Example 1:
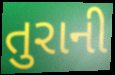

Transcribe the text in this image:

તુરાની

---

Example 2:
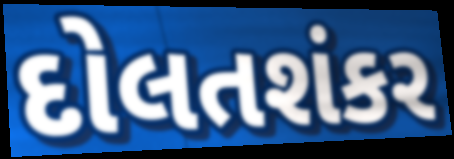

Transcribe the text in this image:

દોલતશંકર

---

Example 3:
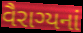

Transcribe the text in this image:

વૈરાગ્યનાં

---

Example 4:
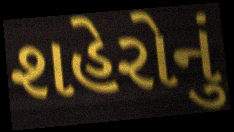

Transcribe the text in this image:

શહેરોનું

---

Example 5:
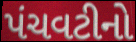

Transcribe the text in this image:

પંચવટીનો